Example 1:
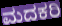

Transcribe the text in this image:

ಮದಕರಿ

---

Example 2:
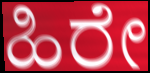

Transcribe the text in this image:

ಹಿರೇ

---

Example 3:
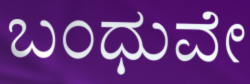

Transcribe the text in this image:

ಬಂಧುವೇ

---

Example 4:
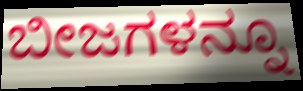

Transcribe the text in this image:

ಬೀಜಗಳನ್ನೂ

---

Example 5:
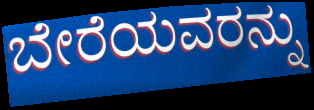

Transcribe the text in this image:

ಬೇರೆಯವರನ್ನು